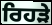
ਰਿਹੜੇ